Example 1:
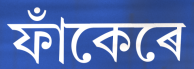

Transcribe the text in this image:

ফাঁকেৰে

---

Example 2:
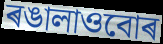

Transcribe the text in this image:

ৰঙালাওবোৰ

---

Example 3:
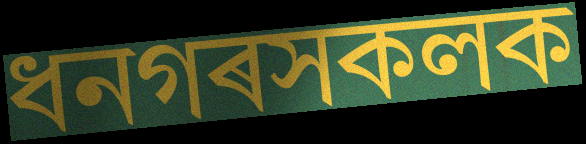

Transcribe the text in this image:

ধনগৰসকলক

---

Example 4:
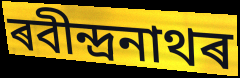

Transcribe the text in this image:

ৰবীন্দ্ৰনাথৰ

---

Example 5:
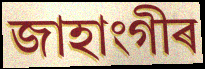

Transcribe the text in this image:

জাহাংগীৰ